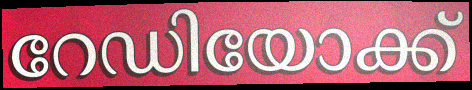
റേഡിയോക്ക്